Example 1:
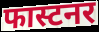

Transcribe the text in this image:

फास्टनर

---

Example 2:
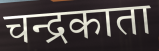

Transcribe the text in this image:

चन्द्रकाता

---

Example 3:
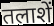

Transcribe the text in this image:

तलाशें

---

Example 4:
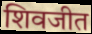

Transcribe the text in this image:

शिवजीत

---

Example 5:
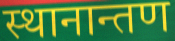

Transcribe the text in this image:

स्थानान्तण